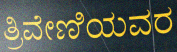
ತ್ರಿವೇಣಿಯವರ